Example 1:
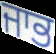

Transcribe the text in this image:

ਜਾਭ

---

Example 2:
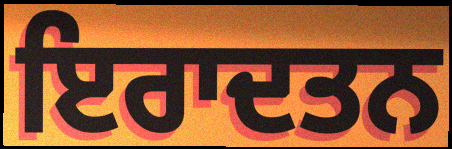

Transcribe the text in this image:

ਇਰਾਦਤਨ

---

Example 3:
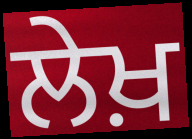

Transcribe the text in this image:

ਲੇਖ਼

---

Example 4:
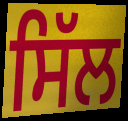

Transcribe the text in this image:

ਸਿੱਲ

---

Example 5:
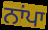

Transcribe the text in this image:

ਨਾਂਪਾ